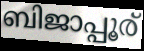
ബിജാപ്പൂര്